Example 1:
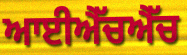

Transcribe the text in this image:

ਆਈਐੱਚਐੱਚ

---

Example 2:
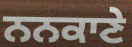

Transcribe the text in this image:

ਨਨਕਾਣੇ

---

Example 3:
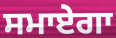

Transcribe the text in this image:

ਸਮਾਏਗਾ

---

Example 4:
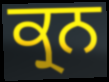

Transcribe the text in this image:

ਕ੍ਰਨ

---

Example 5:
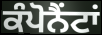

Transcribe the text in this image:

ਕੰਪੋਨੈਂਟਾਂ